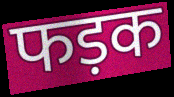
फड़क